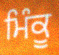
ਮਿੰਕੂ